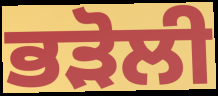
ਭੜੋਲੀ